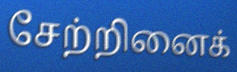
சேற்றினைக்